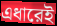
এধারেই